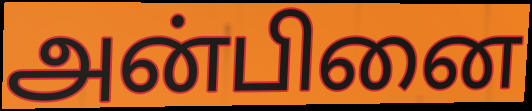
அன்பினை